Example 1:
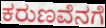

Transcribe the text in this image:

ಕರುಣವೆನಗೆ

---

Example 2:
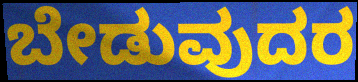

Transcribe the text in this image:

ಬೇಡುವುದರ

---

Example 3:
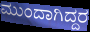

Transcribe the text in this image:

ಮುಂದಾಗಿದ್ದರ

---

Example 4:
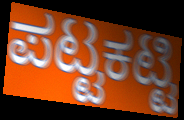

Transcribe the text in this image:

ಪಟ್ಟಕಟ್ಟಿ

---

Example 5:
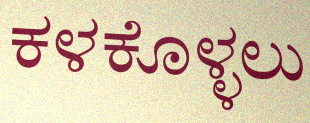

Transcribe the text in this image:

ಕಳಕೊಳ್ಳಲು